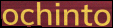
ochinto